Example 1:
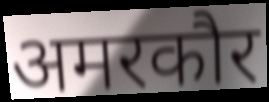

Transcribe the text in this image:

अमरकौर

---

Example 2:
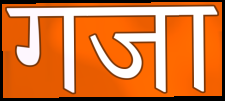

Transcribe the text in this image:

गजा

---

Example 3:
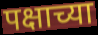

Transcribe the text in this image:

पक्षाच्या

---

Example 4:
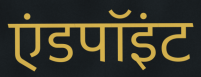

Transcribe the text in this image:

एंडपॉइंट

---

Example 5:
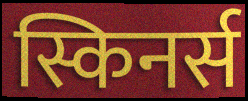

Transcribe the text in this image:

स्किनर्स